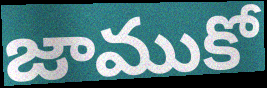
జాముకో